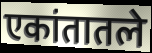
एकांतातले